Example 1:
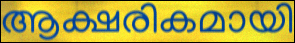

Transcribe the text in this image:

ആക്ഷരികമായി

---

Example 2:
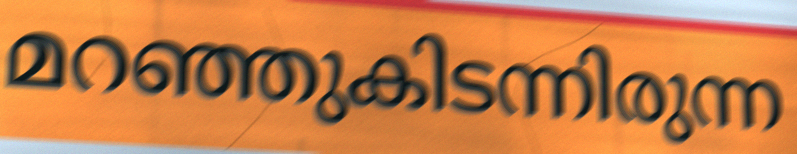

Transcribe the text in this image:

മറഞ്ഞുകിടന്നിരുന്ന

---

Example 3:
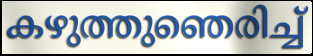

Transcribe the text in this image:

കഴുത്തുഞെരിച്ച്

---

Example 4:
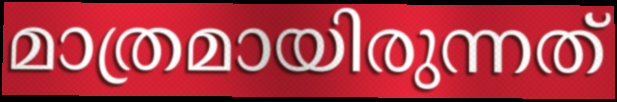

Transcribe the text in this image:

മാത്രമായിരുന്നത്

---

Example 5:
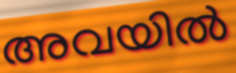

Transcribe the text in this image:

അവയിൽ